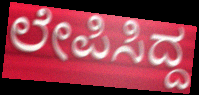
ಲೇಪಿಸಿದ್ದ